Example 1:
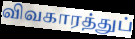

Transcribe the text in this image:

விவகாரத்துப்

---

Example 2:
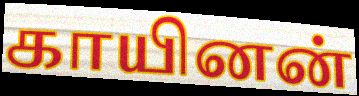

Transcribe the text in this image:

காயினன்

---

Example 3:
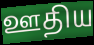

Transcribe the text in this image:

ஊதிய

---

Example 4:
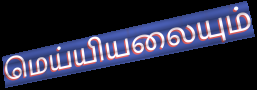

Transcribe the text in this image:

மெய்யியலையும்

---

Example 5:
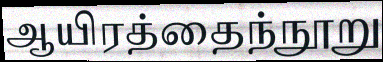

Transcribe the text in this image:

ஆயிரத்தைந்நூறு